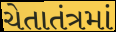
ચેતાતંત્રમાં